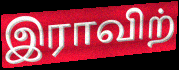
இராவிற்